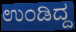
ಉಂಡಿದ್ದ